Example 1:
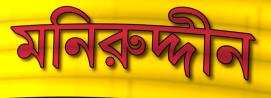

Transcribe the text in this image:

মনিরুদ্দীন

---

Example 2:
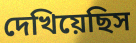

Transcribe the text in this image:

দেখিয়েছিস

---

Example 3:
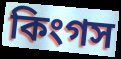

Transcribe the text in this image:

কিংগস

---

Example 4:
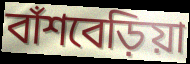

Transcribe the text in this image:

বাঁশবেড়িয়া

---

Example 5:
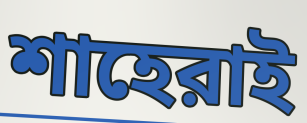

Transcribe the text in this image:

শাহেরাই